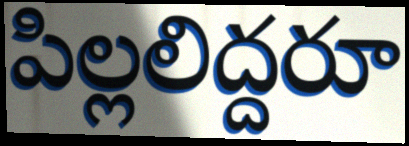
పిల్లలిద్దరూ